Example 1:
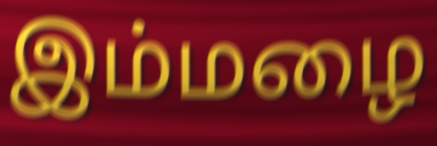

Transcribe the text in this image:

இம்மழை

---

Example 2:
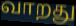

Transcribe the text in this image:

வாறது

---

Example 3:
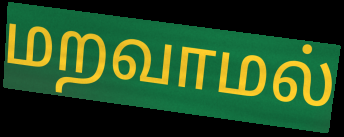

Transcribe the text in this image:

மறவாமல்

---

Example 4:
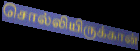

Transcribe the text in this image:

சொல்லியிருக்கான்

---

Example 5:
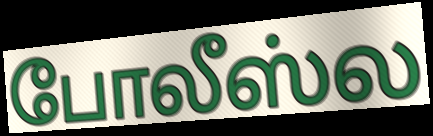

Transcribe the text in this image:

போலீஸ்ல